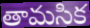
తామసిక